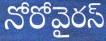
నోరోవైరస్